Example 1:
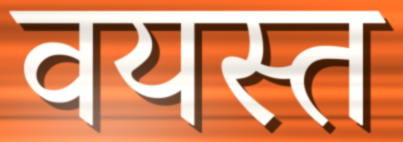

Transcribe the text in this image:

वयस्त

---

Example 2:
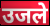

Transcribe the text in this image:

उजले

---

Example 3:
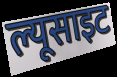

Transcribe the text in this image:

ल्यूसाइट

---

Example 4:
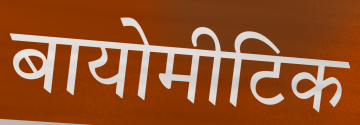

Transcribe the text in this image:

बायोमीटिक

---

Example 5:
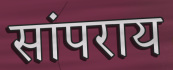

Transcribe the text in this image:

सांपराय